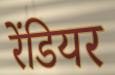
रेंडियर